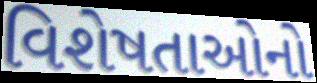
વિશેષતાઓનો